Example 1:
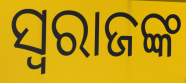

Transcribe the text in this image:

ସ୍ୱରାଜଙ୍କ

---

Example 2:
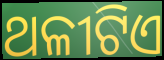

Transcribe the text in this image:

ଥଳୀଟିଏ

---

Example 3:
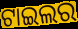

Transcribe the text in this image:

ଟାଇଲର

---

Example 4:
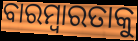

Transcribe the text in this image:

ବାରମ୍ବାରତାକୁ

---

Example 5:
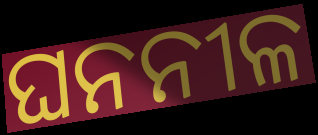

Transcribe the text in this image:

ଘନନୀଳ